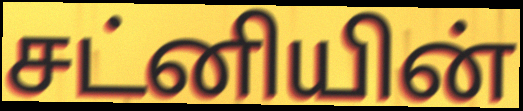
சட்னியின்